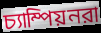
চ্যাম্পিয়নরা